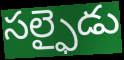
సల్ఫైడు